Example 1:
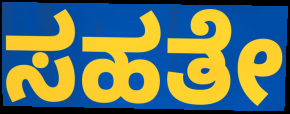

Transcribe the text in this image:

ಸಹತೇ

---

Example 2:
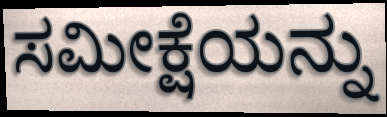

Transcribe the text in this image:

ಸಮೀಕ್ಷೆಯನ್ನು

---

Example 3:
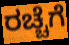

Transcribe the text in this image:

ರಚ್ಚೆಗೆ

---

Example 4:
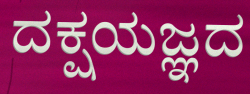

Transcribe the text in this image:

ದಕ್ಷಯಜ್ಞದ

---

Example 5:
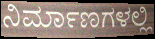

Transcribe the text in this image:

ನಿರ್ಮಾಣಗಳಲ್ಲಿ